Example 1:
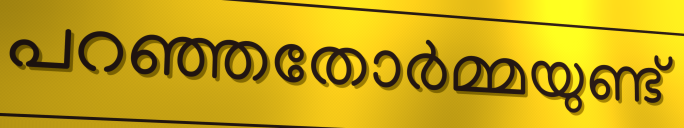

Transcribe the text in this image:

പറഞ്ഞതോർമ്മയുണ്ട്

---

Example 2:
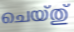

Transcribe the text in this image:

ചെയ്തു്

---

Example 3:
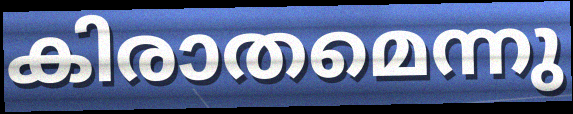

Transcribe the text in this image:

കിരാതമെന്നു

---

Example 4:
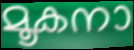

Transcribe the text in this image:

മൂകനാ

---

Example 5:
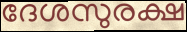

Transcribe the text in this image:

ദേശസുരക്ഷ